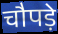
चौपड़े